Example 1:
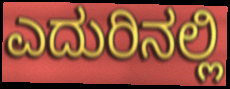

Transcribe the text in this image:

ಎದುರಿನಲ್ಲಿ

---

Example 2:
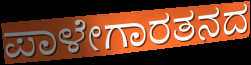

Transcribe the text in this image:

ಪಾಳೇಗಾರತನದ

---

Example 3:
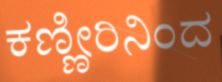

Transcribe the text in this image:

ಕಣ್ಣೀರಿನಿಂದ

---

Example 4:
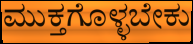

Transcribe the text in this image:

ಮುಕ್ತಗೊಳ್ಳಬೇಕು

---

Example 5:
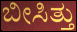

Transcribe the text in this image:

ಬೀಸಿತ್ತು